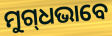
ମୁଗ୍‌ଧଭାବେ